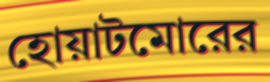
হোয়াটমোরের